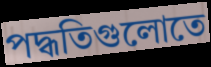
পদ্ধতিগুলোতে